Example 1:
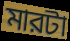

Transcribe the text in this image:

মারটা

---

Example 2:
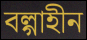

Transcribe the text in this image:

বল্গাহীন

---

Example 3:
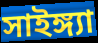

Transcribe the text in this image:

সাইঙ্গ্যা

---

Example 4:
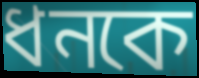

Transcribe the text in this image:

ধনকে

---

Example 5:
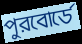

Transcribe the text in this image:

পুরবোর্ডে